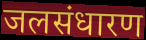
जलसंधारण